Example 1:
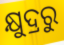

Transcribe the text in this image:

କ୍ଷୁଦ୍ରରୁ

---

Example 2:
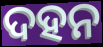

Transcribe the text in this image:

ଦହନ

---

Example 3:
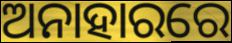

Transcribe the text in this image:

ଅନାହାରରେ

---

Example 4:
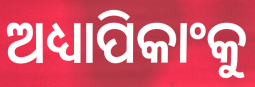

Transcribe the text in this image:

ଅଧ୍ୟାପିକାଂକୁ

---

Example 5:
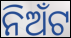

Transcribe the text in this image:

ନିଅଁଟ